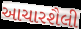
આચારશૈલી